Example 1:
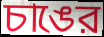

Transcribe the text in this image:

চাঙের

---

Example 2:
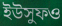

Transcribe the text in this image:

ইউসুফও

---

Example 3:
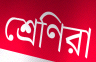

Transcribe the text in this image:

শ্রেণিরা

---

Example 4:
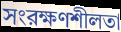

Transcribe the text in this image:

সংরক্ষণশীলতা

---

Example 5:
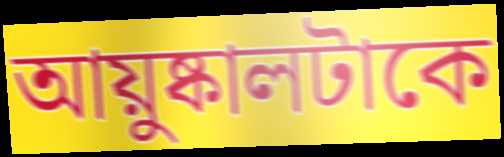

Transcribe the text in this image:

আয়ুষ্কালটাকে